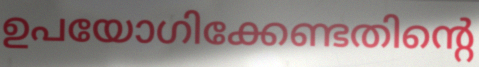
ഉപയോഗിക്കേണ്ടതിന്റെ